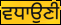
ਵਧਾਉਣੀ